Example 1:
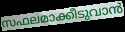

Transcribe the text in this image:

സഫലമാക്കീടുവാൻ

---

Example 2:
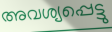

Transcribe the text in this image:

അവശ്യപ്പെട്ടു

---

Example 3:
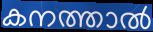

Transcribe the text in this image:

കനത്താൽ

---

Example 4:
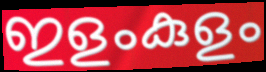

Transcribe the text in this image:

ഇളംകുളം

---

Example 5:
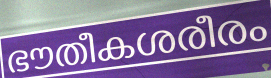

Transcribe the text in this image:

ഭൗതീകശരീരം